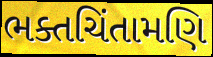
ભક્તચિંતામણિ